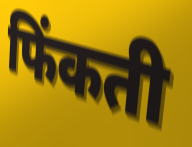
फिंकती